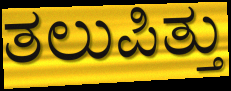
ತಲುಪಿತ್ತು